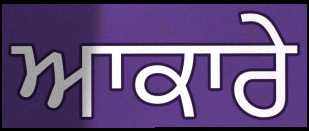
ਆਕਾਰੇ